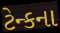
ટેન્કના